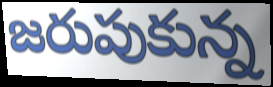
జరుపుకున్న